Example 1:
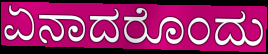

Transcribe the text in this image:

ಏನಾದರೊಂದು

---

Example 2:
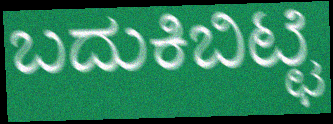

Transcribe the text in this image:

ಬದುಕಿಬಿಟ್ಟೆ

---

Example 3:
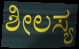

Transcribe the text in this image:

ಶೀಲಸ್ಯ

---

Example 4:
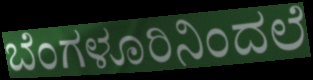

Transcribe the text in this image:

ಬೆಂಗಳೂರಿನಿಂದಲೆ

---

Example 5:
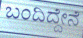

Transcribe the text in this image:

ಬಂದಿದ್ದೇನೆ